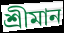
শ্রীমান